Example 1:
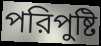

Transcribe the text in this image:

পরিপুষ্টি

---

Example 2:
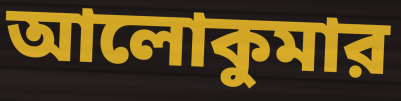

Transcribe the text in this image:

আলোকুমার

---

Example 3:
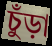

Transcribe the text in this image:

চুঁড়া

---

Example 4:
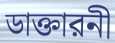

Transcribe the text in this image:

ডাক্তারনী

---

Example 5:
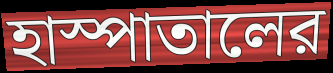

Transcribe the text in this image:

হাস্পাতালের